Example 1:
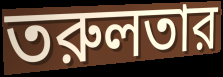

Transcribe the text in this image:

তরুলতার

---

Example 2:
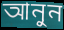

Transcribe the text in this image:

আনুন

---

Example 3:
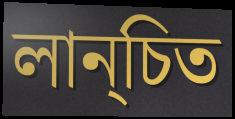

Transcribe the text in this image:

লান্চিত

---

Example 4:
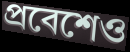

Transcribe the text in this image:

প্রবেশেও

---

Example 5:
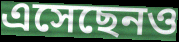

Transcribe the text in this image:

এসেছেনও